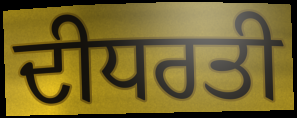
ਦੀਧਰਤੀ